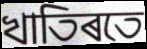
খাতিৰতে